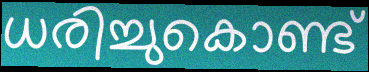
ധരിച്ചുകൊണ്ട്